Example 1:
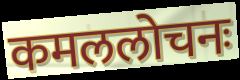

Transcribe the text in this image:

कमललोचनः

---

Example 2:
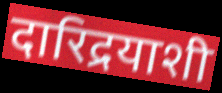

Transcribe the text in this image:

दारिद्रयाशी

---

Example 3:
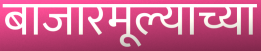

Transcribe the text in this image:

बाजारमूल्याच्या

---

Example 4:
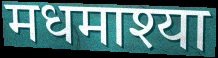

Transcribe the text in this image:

मधमाश्या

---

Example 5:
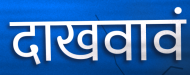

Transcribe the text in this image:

दाखवावं